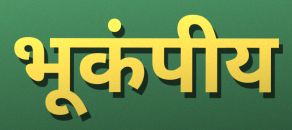
भूकंपीय